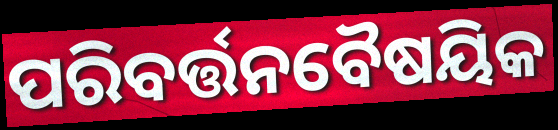
ପରିବର୍ତ୍ତନବୈଷୟିକ